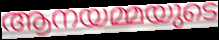
ആനയമ്മയുടെ